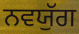
ਨਵਯੁੱਗ